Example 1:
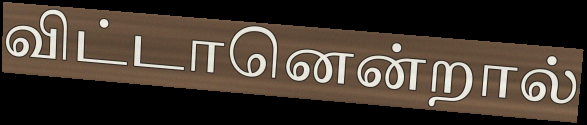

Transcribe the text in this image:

விட்டானென்றால்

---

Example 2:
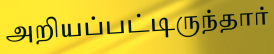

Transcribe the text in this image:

அறியப்பட்டிருந்தார்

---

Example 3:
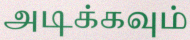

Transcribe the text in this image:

அடிக்கவும்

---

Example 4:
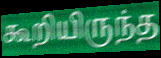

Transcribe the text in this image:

கூறியிருந்த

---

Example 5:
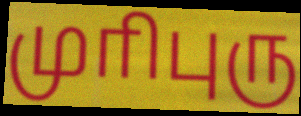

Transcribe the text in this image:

முரிபுரு